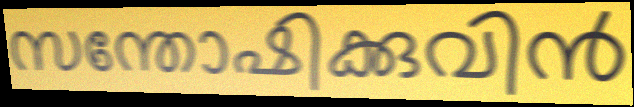
സന്തോഷിക്കുവിൻ